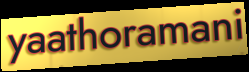
yaathoramani